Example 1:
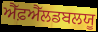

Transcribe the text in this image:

ਐੱਫ਼ਐੱਲਡਬਲਯੂ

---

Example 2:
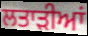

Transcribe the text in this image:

ਲਤਾੜੀਆਂ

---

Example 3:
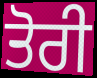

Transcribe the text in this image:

ਤੋਰੀ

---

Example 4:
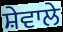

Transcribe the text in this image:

ਸ਼ੇਵਾਲੇ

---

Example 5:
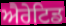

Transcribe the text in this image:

ਐਰੇਟਿਡ